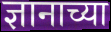
ज्ञानाच्या